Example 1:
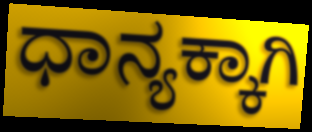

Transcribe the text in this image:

ಧಾನ್ಯಕ್ಕಾಗಿ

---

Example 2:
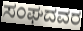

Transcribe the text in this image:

ಸಂಘದವರ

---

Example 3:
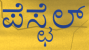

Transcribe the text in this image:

ಪೆಸ್ಟೆಲ್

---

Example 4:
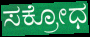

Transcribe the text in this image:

ಸಕ್ರೋಧ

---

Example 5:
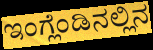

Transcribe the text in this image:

ಇಂಗ್ಲೆಂಡಿನಲ್ಲಿನ